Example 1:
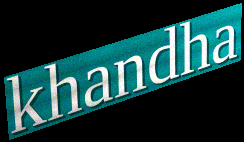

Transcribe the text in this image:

khandha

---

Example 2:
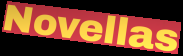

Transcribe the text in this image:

Novellas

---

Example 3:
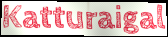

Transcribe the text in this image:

Katturaigal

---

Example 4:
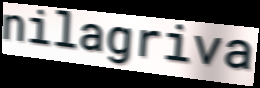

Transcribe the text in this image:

nilagriva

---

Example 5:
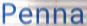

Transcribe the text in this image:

Penna